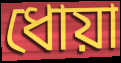
ধোয়া